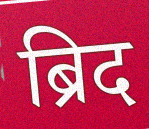
ब्रिद